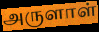
அருளாள்